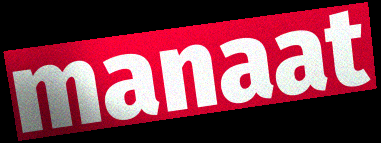
manaat